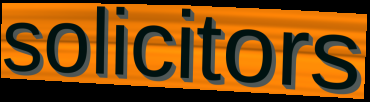
solicitors